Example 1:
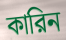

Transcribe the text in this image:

কারিন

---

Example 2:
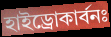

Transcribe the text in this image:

হাইড্রোকার্বনঃ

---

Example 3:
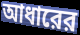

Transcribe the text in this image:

আধারের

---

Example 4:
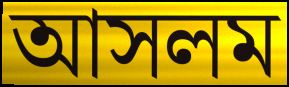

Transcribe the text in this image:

আসলম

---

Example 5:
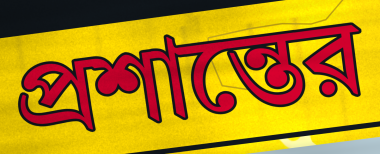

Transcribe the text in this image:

প্রশান্তের